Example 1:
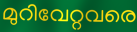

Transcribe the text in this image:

മുറിവേറ്റവരെ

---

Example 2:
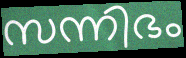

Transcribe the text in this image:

സന്നിഭം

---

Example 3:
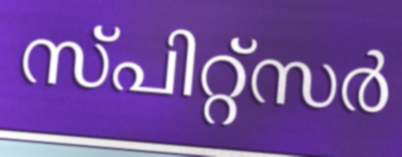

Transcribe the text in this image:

സ്പിറ്റ്സർ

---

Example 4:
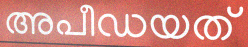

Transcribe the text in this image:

അപീഡയത്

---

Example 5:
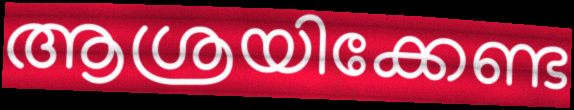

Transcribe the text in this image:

ആശ്രയിക്കേണ്ട